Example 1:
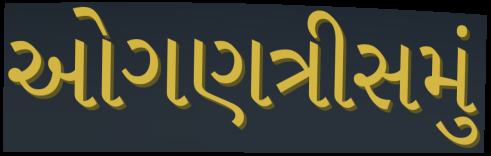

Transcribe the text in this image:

ઓગણત્રીસમું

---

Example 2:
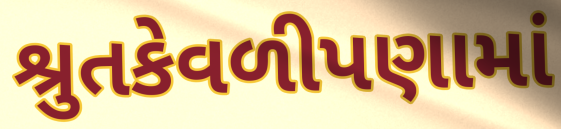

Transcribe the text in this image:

શ્રુતકેવળીપણામાં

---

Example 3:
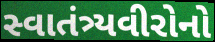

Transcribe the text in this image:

સ્વાતંત્ર્યવીરોનો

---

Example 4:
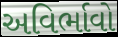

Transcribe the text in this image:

અવિર્ભાવો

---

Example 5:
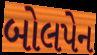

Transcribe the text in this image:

બોલપેન